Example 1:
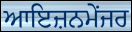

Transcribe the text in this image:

ਆਇਜ਼ਨਮੇਂਜਰ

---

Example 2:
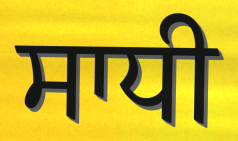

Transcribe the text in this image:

ਸਾਧੀ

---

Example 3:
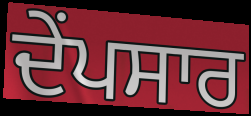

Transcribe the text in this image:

ਦੇਂਪਸਾਰ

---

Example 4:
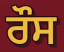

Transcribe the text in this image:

ਰੌਸ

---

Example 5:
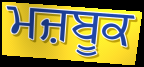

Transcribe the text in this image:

ਮਜ਼ਬੂਕ